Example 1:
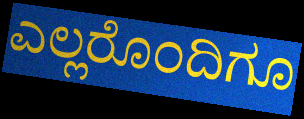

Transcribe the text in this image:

ಎಲ್ಲರೊಂದಿಗೂ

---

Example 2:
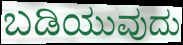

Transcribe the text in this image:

ಬಡಿಯುವುದು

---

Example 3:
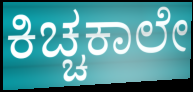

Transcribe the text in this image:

ಕಿಚ್ಚಕಾಲೇ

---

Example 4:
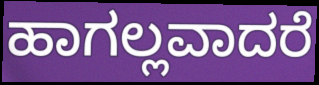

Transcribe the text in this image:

ಹಾಗಲ್ಲವಾದರೆ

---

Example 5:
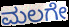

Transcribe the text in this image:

ಮಲಗೇ